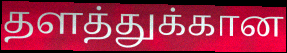
தளத்துக்கான